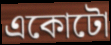
একোটো